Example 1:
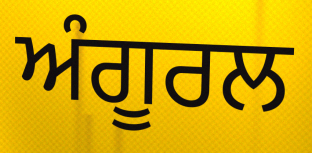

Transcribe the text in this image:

ਅੰਗੂਰਲ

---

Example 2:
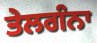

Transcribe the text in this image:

ਤੇਲਗੰਨਾ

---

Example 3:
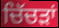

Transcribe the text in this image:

ਚਿੱਚੜਾਂ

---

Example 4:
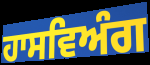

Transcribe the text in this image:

ਹਾਸਵਿਅੰਗ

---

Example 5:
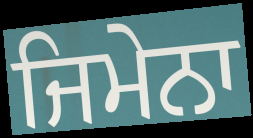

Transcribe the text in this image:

ਜਿਮੇਨਾ